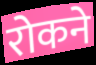
रोकने